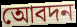
আেবদন